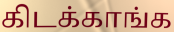
கிடக்காங்க